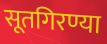
सूतगिरण्या